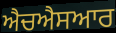
ਐਚਐਸਆਰ